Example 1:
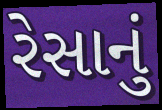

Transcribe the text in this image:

રેસાનું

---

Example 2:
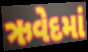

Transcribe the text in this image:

ઋવેદમાં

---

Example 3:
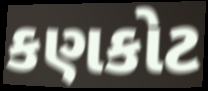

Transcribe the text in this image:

કણકોટ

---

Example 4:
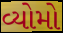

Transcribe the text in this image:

વ્યોમો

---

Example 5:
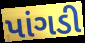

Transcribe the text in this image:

પાંગડી